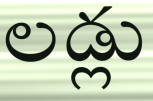
లడ్లు